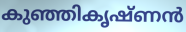
കുഞ്ഞികൃഷ്ണൻ